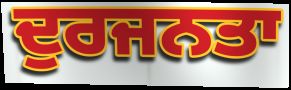
ਦੁਰਜਨਤਾ